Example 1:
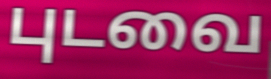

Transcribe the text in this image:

புடவை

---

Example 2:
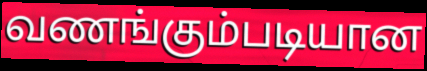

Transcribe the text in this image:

வணங்கும்படியான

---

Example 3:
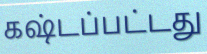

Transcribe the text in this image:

கஷ்டப்பட்டது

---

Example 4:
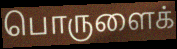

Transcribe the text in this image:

பொருளைக்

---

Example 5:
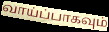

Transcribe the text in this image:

வாய்ப்பாகவும்